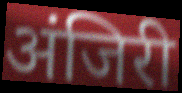
अंजिरी